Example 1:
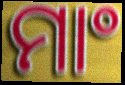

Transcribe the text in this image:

ମାଂ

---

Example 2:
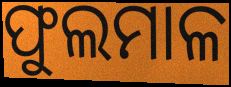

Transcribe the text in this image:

ଫୁଲମାଳ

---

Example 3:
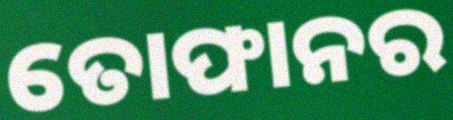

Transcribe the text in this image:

ତୋଫାନର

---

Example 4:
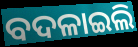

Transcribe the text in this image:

ବଦଳାଇଲି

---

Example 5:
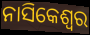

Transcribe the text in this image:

ନାସିକେଶ୍ୱର